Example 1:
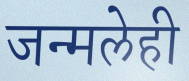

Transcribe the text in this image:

जन्मलेही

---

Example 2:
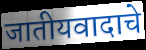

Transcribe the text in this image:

जातीयवादाचे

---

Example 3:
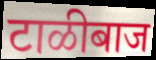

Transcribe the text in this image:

टाळीबाज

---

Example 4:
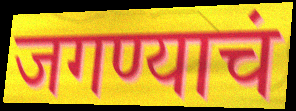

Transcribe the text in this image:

जगण्याचं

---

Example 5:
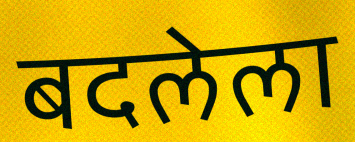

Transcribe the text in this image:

बदलेला